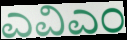
ಎವಿಎಂ